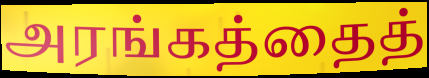
அரங்கத்தைத்